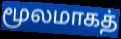
மூலமாகத்